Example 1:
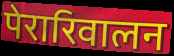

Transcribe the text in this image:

पेरारिवालन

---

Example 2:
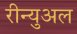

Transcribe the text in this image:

रीन्युअल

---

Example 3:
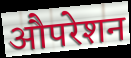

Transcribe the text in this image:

औपरेशन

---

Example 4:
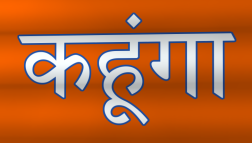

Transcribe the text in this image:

कहूंगा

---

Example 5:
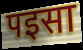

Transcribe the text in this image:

पइसा